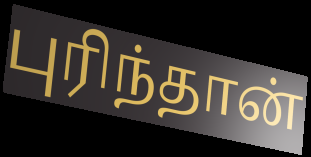
புரிந்தான்